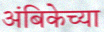
अंबिकेच्या